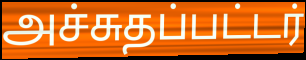
அச்சுதப்பட்டர்